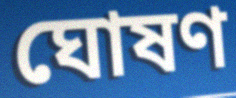
ঘোষণ